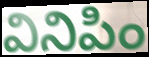
వినిపిం